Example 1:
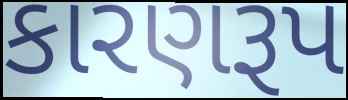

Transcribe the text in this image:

કારણરૂપ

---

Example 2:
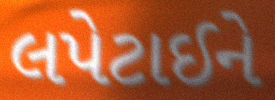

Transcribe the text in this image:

લપેટાઈને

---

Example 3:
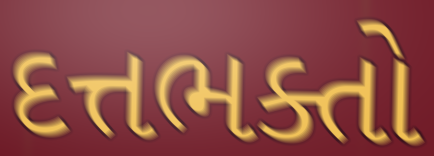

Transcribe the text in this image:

દત્તભક્તો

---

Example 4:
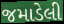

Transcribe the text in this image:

જમાડેલી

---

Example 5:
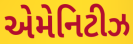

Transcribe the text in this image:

એમેનિટીઝ